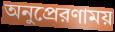
অনুপ্রেরণাময়